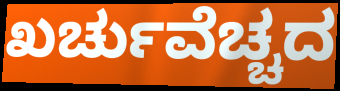
ಖರ್ಚುವೆಚ್ಚದ